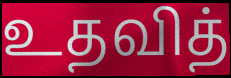
உதவித்